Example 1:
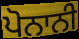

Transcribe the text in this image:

ਪੋਨਾਨੀ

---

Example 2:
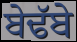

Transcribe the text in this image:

ਬੇਢੱਬੇ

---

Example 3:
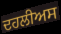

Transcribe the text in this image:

ਦਹਲੀਅਸ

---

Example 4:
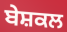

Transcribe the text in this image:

ਬੇਸ਼ਕਲ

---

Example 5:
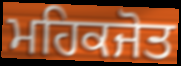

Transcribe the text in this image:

ਮਹਿਕਜੋਤ